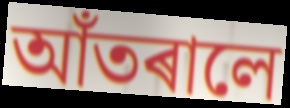
আঁতৰালে